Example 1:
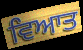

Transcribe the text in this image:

ਵਿਆਤ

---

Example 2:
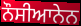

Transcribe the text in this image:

ਨੌਸੀਆਨੇਨ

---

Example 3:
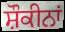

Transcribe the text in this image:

ਸ਼ੌਕੀਨਾਂ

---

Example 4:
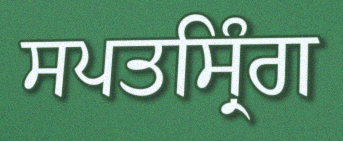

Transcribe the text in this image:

ਸਪਤਸ੍ਰਿੰਗ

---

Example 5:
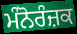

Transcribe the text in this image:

ਮੰਨੋਰੰਜ਼ਕ